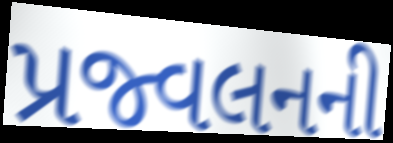
પ્રજ્વલનની